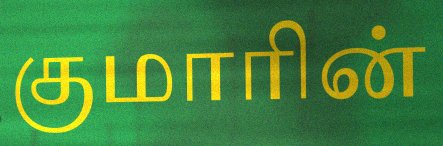
குமாரின்